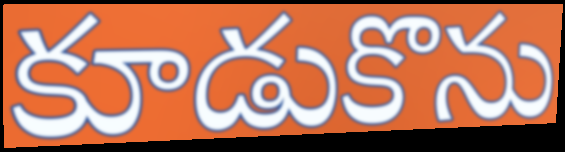
కూడుకొను